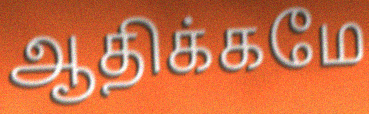
ஆதிக்கமே